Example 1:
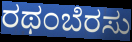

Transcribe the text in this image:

ರಥಂಬೆರಸು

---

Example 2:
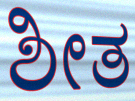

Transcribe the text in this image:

ಶೀತ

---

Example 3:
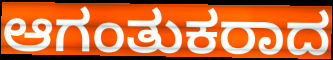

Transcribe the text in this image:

ಆಗಂತುಕರಾದ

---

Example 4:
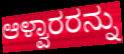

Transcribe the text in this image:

ಆಳ್ವಾರರನ್ನು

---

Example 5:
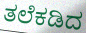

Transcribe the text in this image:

ತಲೆಕಡಿದ